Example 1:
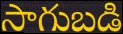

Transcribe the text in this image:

సాగుబడి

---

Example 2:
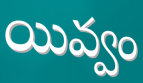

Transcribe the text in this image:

యివ్వం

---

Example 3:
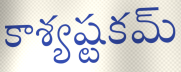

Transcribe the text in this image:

కాశ్యష్టకమ్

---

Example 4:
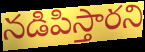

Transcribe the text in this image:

నడిపిస్తారని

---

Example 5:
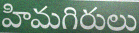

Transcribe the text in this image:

హిమగిరులు